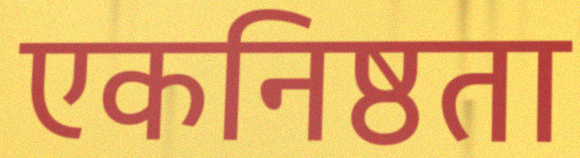
एकनिष्ठता